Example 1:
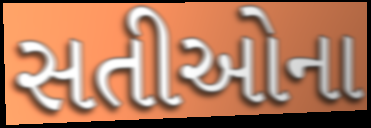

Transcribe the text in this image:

સતીઓના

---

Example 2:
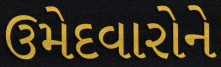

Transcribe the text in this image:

ઉમેદવારોને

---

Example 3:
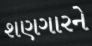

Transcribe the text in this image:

શણગારને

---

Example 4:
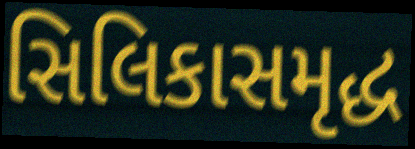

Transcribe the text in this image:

સિલિકાસમૃદ્ધ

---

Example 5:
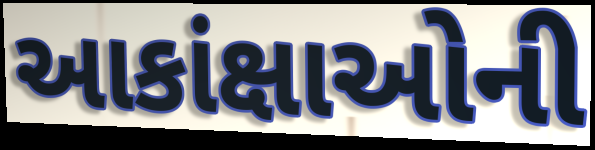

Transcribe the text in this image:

આકાંક્ષાઓની